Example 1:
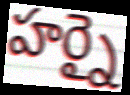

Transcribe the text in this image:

హర్నై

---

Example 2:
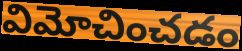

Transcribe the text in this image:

విమోచించడం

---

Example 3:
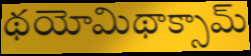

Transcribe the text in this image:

థయోమిథాక్సామ్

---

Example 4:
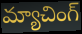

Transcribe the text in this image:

మ్యాచింగ్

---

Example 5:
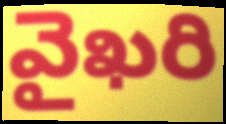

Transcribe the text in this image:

వైఖరి